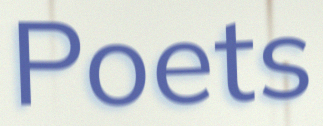
Poets